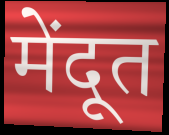
मेंदूत